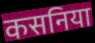
कसनिया